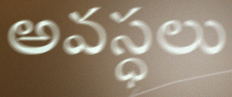
అవస్ధలు